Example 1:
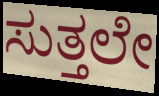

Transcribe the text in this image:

ಸುತ್ತಲೇ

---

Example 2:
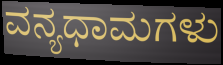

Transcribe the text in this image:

ವನ್ಯಧಾಮಗಳು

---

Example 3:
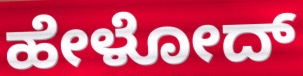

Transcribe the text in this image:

ಹೇಳೋದ್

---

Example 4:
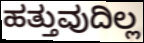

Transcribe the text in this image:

ಹತ್ತುವುದಿಲ್ಲ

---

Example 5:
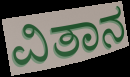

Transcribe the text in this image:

ವಿತಾನ